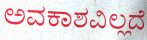
ಅವಕಾಶವಿಲ್ಲದೆ